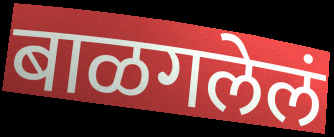
बाळगलेलं